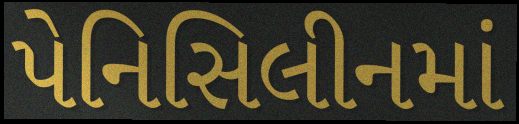
પેનિસિલીનમાં